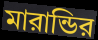
মারান্ডির